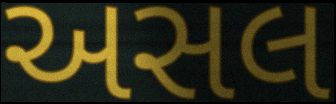
અસલ